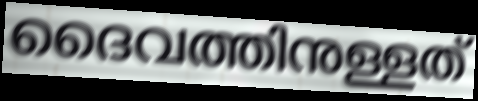
ദൈവത്തിനുള്ളത്